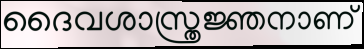
ദൈവശാസ്ത്രജ്ഞനാണ്